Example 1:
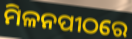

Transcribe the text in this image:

ମିଳନପୀଠରେ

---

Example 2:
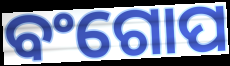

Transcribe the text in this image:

ବଂଗୋପ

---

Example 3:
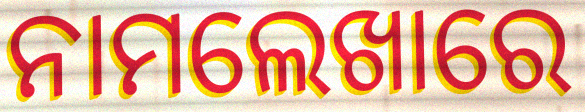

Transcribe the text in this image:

ନାମଲେଖାରେ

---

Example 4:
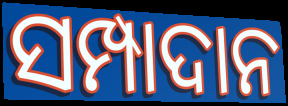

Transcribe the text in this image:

ସମ୍ପାଦାନ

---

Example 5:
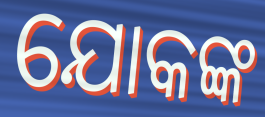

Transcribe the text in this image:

ଯୋକଙ୍କ